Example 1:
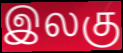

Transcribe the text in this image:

இலகு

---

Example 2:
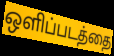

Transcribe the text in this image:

ஒளிப்படத்தை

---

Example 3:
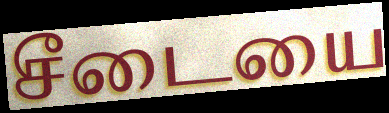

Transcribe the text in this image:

சீடையை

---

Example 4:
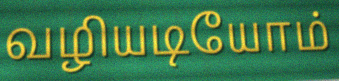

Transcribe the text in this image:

வழியடியோம்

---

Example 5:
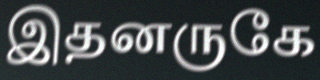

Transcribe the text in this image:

இதனருகே